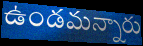
ఉండమన్నారు